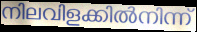
നിലവിളക്കിൽനിന്ന്